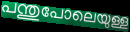
പന്തുപോലെയുള്ള